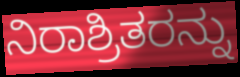
ನಿರಾಶ್ರಿತರನ್ನು